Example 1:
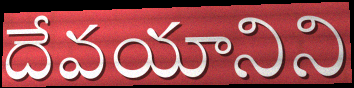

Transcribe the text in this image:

దేవయానిని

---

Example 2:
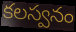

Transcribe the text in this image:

కలస్వనం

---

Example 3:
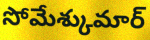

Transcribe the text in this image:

సోమేశ్కుమార్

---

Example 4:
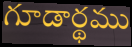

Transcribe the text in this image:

గూడార్థము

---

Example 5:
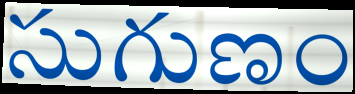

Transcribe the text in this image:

సుగుణం